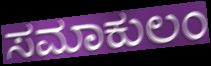
ಸಮಾಕುಲಂ